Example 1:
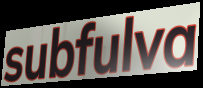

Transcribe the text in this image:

subfulva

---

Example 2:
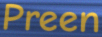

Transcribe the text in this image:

Preen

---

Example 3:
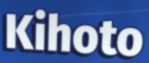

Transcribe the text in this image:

Kihoto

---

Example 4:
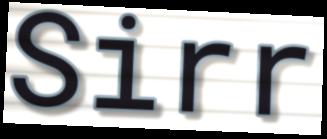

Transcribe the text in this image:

Sirr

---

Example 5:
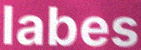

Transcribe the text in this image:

Iabes